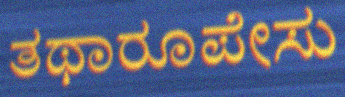
ತಥಾರೂಪೇಸು